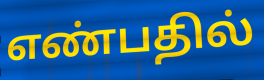
எண்பதில்